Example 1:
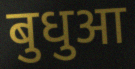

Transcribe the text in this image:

बुधुआ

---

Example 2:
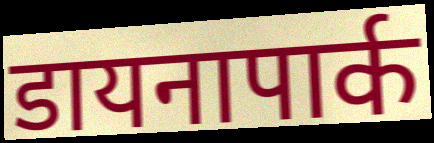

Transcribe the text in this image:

डायनापार्क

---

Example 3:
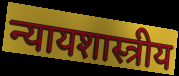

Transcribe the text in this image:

न्यायशास्त्रीय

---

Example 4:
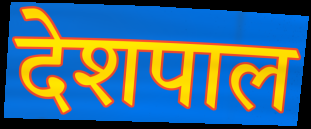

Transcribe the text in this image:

देशपाल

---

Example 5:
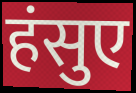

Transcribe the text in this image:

हंसुए